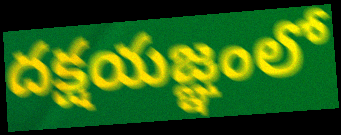
దక్షయజ్ఞంలో